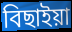
বিছাইয়া